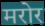
मरोर